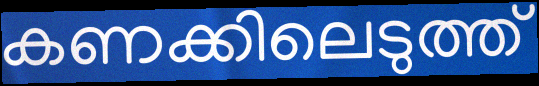
കണക്കിലെടുത്ത്